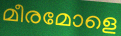
മീരമോളെ